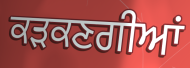
ਕੜਕਣਗੀਆਂ